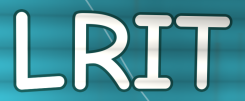
LRIT